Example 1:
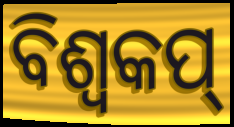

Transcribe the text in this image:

ବିଶ୍ବକପ୍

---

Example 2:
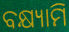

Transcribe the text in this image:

ବକ୍ଷ୍ୟାମି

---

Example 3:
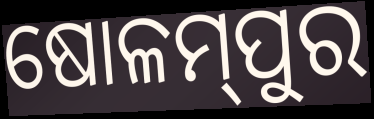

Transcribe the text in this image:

ଷୋଳମ୍‌ପୁର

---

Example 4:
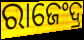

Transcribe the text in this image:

ରାଜେଂଦ୍ର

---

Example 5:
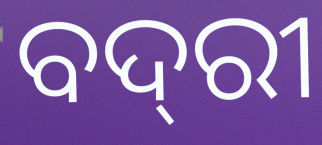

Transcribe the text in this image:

ବଦ୍‌ରୀ